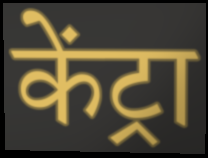
केंट्रा